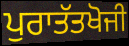
ਪੁਰਾਤੱਤਖੋਜੀ